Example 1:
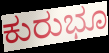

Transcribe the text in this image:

ಕುರುಭೂ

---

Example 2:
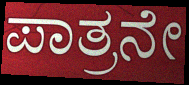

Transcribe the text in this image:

ಪಾತ್ರನೇ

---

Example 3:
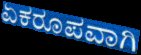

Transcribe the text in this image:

ಏಕರೂಪವಾಗಿ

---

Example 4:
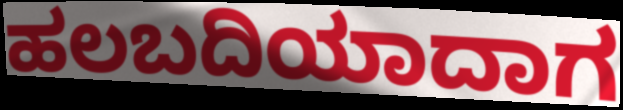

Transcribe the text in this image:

ಹಲಬದಿಯಾದಾಗ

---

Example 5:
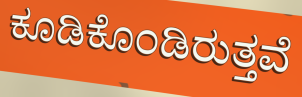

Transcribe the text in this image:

ಕೂಡಿಕೊಂಡಿರುತ್ತವೆ